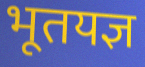
भूतयज्ञ